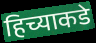
हिच्याकडे